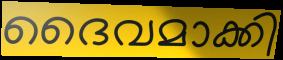
ദൈവമാക്കി